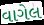
વાગેલ